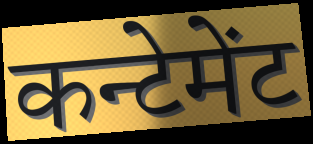
कन्टेमेंट